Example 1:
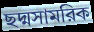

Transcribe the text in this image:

ছদ্মসামরিক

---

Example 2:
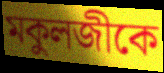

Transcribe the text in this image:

মকুলজীকে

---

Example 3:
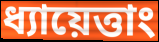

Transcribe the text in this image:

ধ্যায়েত্তাং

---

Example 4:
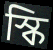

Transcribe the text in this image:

স্কি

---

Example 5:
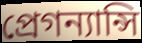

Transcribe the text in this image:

প্রেগন্যান্সি